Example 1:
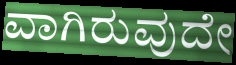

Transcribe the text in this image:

ವಾಗಿರುವುದೇ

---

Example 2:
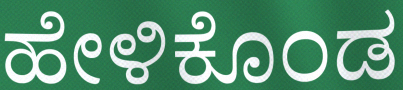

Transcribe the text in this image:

ಹೇಳಿಕೊಂಡ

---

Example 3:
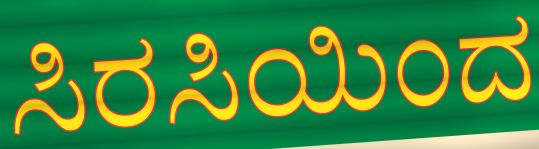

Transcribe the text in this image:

ಸಿರಸಿಯಿಂದ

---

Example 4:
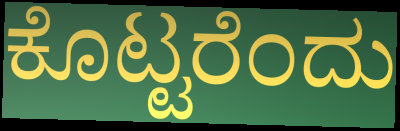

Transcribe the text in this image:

ಕೊಟ್ಟರೆಂದು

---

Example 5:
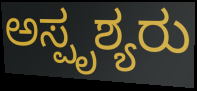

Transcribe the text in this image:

ಅಸ್ಪೃಶ್ಯರು